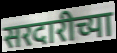
सरदारीच्या